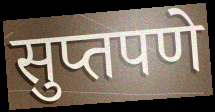
सुप्तपणे